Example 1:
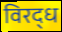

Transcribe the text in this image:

विरद्ध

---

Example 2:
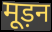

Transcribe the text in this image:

मूड़न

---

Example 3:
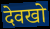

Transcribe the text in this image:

देवखो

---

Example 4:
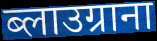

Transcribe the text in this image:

ब्लाउग्राना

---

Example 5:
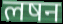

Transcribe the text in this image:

लषन